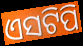
ଏସଟିପି